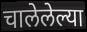
चालेलेल्या